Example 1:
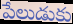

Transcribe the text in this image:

పేలుడుకు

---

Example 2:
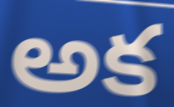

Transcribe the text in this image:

అక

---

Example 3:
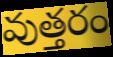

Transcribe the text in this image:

వుత్తరం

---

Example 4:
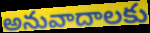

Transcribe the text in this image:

అనువాదాలకు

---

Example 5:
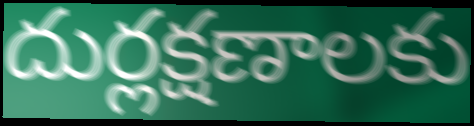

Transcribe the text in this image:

దుర్లక్షణాలకు